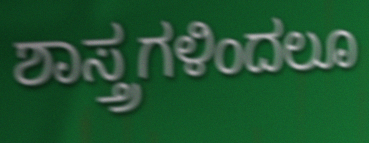
ಶಾಸ್ತ್ರಗಳಿಂದಲೂ